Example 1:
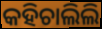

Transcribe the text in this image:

କହିଚାଲିଲି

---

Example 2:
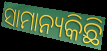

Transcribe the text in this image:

ସାମାନ୍ୟକିଛି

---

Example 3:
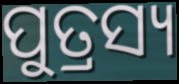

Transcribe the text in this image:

ପୁତ୍ରସ୍ୟ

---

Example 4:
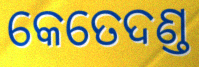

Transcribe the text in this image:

କେତେଦଣ୍ଡ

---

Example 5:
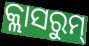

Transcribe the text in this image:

କ୍ଲାସରୁମ୍